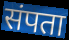
संपता